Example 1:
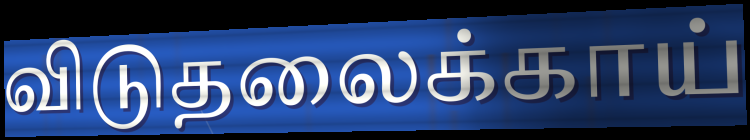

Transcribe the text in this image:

விடுதலைக்காய்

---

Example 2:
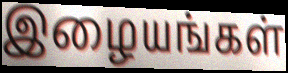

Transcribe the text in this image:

இழையங்கள்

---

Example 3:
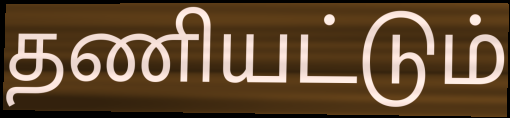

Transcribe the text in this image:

தணியட்டும்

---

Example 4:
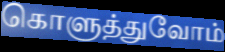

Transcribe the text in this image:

கொளுத்துவோம்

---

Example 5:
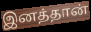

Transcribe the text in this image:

இனத்தான்